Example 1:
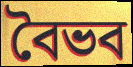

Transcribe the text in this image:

বৈভব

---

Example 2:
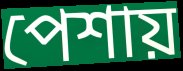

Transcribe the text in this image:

পেশায়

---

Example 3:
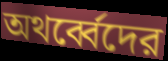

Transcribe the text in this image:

অথর্ব্বেদের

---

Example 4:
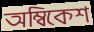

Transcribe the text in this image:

অম্বিকেশ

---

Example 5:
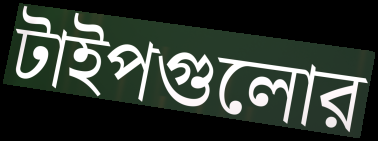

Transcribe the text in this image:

টাইপগুলোর